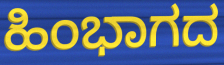
ಹಿಂಭಾಗದ